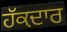
ਹੱਕ਼ਦਾਰ